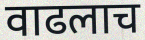
वाढलाच